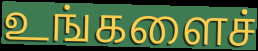
உங்களைச்